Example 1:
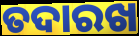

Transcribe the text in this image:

ତଦାରଖ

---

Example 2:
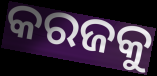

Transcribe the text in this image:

କରଜକୁ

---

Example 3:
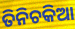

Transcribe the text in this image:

ତିନିଚକିଆ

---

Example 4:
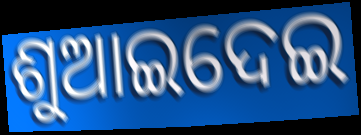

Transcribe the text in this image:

ଶୁଆଇଦେଇ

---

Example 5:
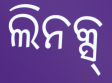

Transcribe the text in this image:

ଲିନକ୍ସ୍